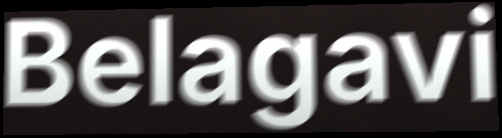
Belagavi